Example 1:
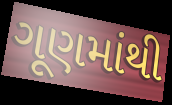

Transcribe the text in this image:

ગૂણમાંથી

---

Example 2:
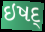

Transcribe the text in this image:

ઇષદ્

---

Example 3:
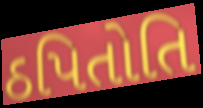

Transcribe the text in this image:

ઠપિતોતિ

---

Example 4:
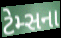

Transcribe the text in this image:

ટેમ્સના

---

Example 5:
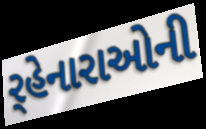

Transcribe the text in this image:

ર્‌હેનારાઓની